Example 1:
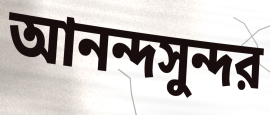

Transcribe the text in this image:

আনন্দসুন্দর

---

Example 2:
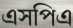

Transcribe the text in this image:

এসপিএ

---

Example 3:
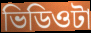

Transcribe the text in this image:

ভিডিওটা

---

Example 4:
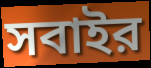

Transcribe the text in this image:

সবাইর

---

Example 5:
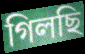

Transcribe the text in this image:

গিলছি